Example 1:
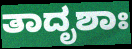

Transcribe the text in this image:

ತಾದೃಶಾಃ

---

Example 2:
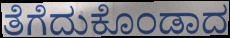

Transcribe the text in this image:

ತೆಗೆದುಕೊಂಡಾದ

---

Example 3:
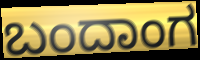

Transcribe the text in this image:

ಬಂದಾಂಗ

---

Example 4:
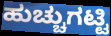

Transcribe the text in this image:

ಹುಚ್ಚುಗಟ್ಟಿ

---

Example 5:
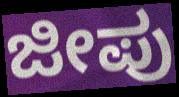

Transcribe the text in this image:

ಜೀಪು